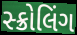
સ્ક્રોલિંગ